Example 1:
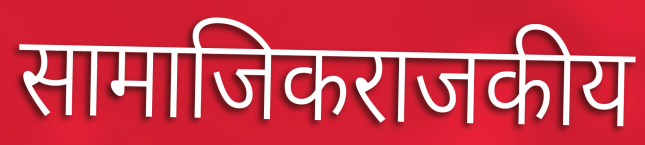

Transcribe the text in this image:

सामाजिकराजकीय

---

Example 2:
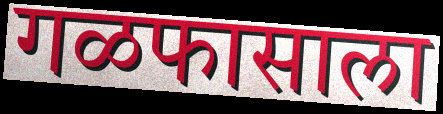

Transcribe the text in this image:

गळफासाला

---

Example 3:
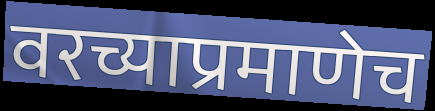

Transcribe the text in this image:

वरच्याप्रमाणेच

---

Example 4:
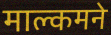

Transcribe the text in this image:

माल्कमने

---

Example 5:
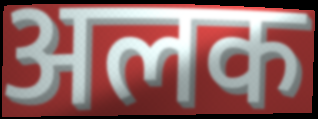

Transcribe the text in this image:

अलक